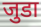
जुडा